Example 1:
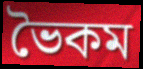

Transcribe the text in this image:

ভৈকম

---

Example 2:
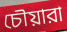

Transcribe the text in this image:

চৌয়ারা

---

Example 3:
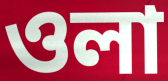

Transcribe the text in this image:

ওলা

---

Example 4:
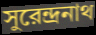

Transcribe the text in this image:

সুরেন্দ্রনাথ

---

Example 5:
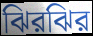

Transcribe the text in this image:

ঝিরঝির